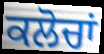
ਕਲੋਚਾਂ